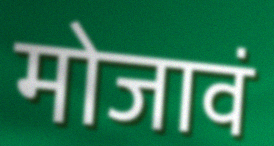
मोजावं